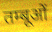
तम्बूओं